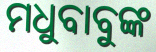
ମଧୁବାବୁଙ୍କ